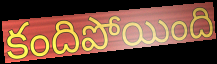
కందిపోయింది